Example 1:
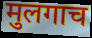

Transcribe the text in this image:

मुलगाच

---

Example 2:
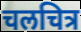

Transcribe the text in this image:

चलचित्र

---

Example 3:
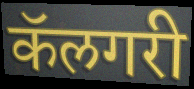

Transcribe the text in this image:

कॅलगरी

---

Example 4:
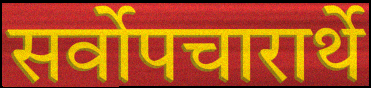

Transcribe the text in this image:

सर्वोपचारार्थे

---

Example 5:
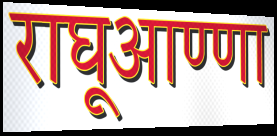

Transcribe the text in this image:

राघूआण्णा